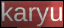
karyu